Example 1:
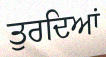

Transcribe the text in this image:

ਤੁਰਦਿਆਂ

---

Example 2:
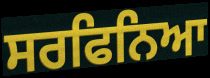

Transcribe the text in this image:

ਸਰਫਿਨਿਆ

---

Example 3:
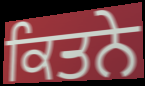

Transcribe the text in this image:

ਕਿਤਨੇ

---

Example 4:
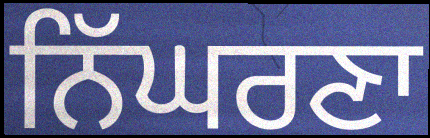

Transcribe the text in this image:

ਨਿੱਘਰਣਾ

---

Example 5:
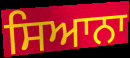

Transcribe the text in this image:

ਸਿਆਨਾ